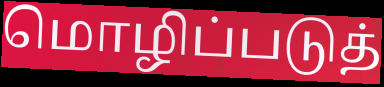
மொழிப்படுத்